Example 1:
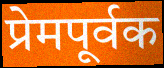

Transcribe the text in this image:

प्रेमपूर्वक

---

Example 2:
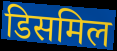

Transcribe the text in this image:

डिसमिल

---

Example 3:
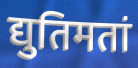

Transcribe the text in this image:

द्युतिमतां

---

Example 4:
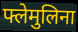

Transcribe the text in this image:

फ्लेमुलिना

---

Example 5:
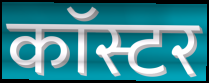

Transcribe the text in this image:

कॉस्टर